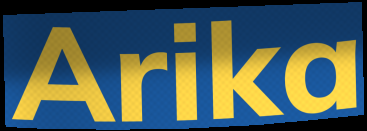
Arika